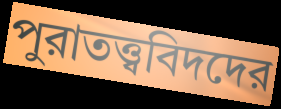
পুরাতত্ত্ববিদদের